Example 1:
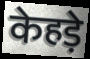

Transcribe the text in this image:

केहड़े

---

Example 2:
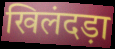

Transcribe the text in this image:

खिलंदड़ा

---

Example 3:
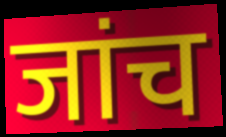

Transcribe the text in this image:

जांच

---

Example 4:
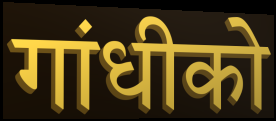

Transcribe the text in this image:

गांधीको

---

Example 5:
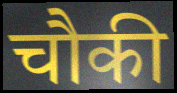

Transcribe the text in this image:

चौकी